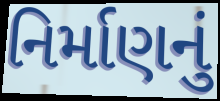
નિર્માણનું